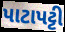
પાટાપટ્ટી